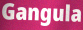
Gangula